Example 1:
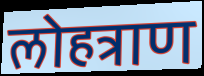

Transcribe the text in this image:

लोहत्राण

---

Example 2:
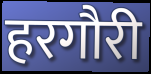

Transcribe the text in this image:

हरगौरी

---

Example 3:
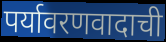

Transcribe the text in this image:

पर्यावरणवादाची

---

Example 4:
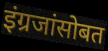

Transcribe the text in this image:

इंग्रजांसोबत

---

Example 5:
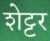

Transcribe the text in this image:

शेट्टर